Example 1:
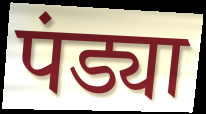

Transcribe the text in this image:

पंड्या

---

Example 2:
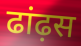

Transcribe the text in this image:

ढांढ़स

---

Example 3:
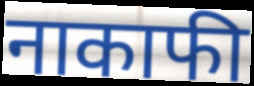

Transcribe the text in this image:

नाकाफी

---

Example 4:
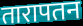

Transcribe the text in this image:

तारापतन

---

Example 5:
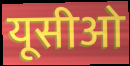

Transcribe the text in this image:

यूसीओ